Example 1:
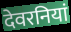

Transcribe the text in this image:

देवरनियां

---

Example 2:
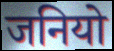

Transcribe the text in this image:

जनियो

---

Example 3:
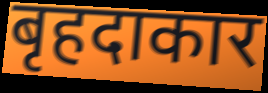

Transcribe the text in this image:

बृहदाकार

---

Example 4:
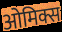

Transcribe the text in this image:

ओमिक्स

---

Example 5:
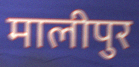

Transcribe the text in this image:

मालीपुर